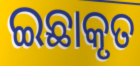
ଇଛାକୃତ